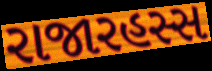
રાજારહસ્સ